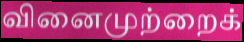
வினைமுற்றைக்